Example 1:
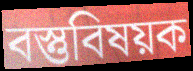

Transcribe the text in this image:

বস্তুবিষয়ক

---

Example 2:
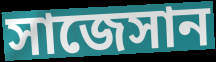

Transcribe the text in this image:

সাজেসান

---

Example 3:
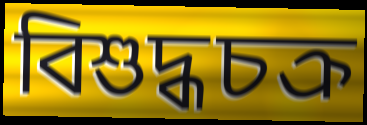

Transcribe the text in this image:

বিশুদ্ধচক্র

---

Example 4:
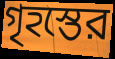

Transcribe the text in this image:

গৃহস্তের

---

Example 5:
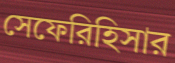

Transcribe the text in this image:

সেফেরিহিসার